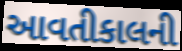
આવતીકાલની